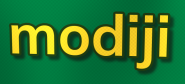
modiji